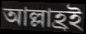
আল্লাহ্রই